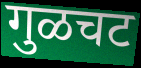
गुळचट